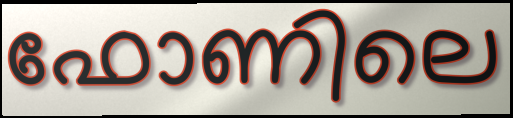
ഫോണിലെ